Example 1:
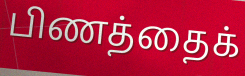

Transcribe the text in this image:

பிணத்தைக்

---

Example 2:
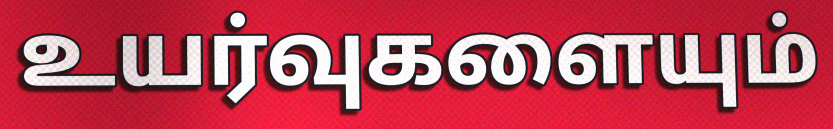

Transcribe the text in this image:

உயர்வுகளையும்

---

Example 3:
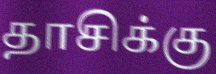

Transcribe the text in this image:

தாசிக்கு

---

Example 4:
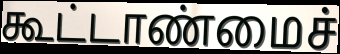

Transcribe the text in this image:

கூட்டாண்மைச்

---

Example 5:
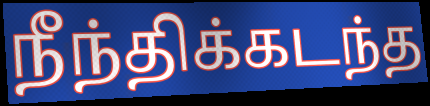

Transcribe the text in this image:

நீந்திக்கடந்த